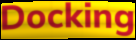
Docking